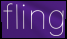
fling